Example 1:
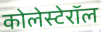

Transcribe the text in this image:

कोलेस्टेरॉल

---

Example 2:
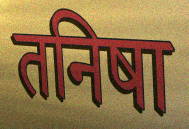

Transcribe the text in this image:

तनिषा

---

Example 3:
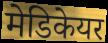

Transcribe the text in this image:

मेडिकेयर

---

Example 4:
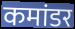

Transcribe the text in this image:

कमांडर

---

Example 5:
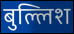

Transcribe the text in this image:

बुल्लिश